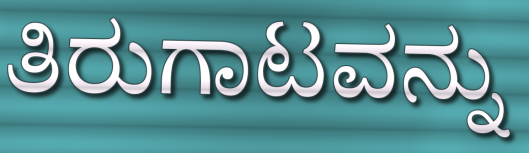
ತಿರುಗಾಟವನ್ನು